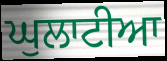
ਘੁਲਾਟੀਆ